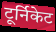
टूर्निकेट